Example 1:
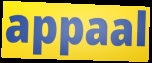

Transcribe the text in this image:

appaal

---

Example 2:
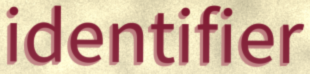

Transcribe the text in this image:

identifier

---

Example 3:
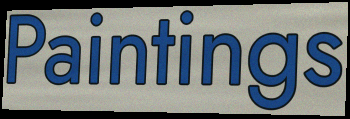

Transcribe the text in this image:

Paintings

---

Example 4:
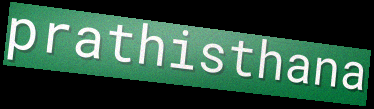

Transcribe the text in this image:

prathisthana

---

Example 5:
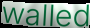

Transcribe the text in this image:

walled